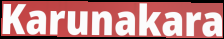
Karunakara